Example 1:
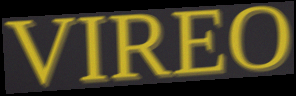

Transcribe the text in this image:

VIREO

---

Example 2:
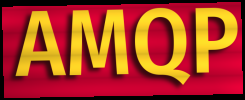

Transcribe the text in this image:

AMQP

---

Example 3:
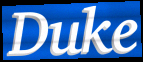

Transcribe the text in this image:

Duke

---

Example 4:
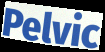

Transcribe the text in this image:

Pelvic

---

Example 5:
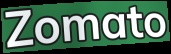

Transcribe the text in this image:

Zomato